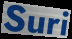
Suri